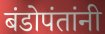
बंडोपंतांनी